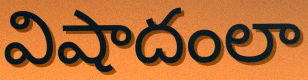
విషాదంలా